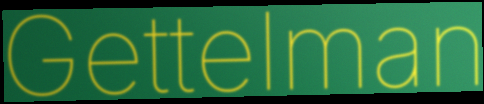
Gettelman